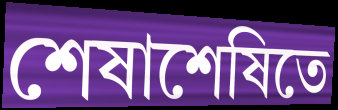
শেষাশেষিতে